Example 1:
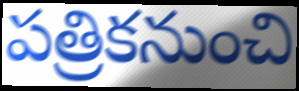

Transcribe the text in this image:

పత్రికనుంచి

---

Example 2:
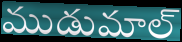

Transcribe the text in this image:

ముడుమాల్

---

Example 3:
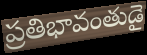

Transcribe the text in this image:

ప్రతిభావంతుడై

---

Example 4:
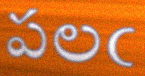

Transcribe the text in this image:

పలఁ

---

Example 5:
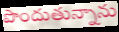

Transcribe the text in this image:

పొందుతున్నాను